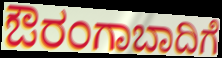
ಔರಂಗಾಬಾದಿಗೆ